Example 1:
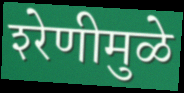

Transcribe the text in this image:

श्रेणीमुळे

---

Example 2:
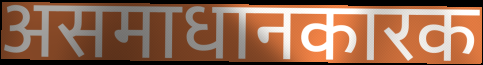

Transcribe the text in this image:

असमाधानकारक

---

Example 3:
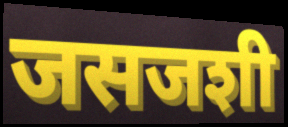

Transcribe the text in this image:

जसजशी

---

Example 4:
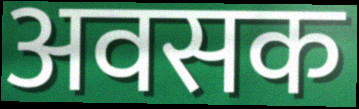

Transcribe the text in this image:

अवसक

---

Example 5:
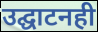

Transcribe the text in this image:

उद्घाटनही